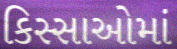
કિસ્સાઓમાં